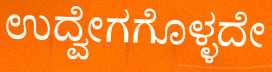
ಉದ್ವೇಗಗೊಳ್ಳದೇ